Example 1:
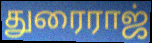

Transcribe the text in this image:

துரைராஜ்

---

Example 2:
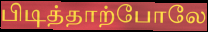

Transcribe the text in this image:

பிடித்தாற்போலே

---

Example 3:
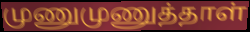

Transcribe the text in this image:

முணுமுணுத்தாள்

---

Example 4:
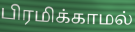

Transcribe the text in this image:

பிரமிக்காமல்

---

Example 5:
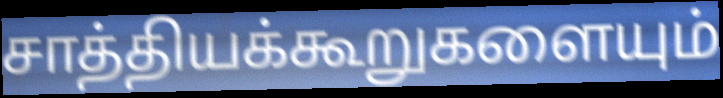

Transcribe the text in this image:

சாத்தியக்கூறுகளையும்